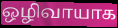
ஒழிவாயாக